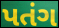
પતંગ